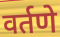
वर्तणे